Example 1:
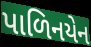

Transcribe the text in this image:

પાળિનયેન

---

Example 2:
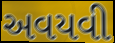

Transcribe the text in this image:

અવયવી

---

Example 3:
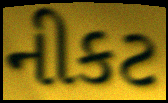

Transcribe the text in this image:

નીકટ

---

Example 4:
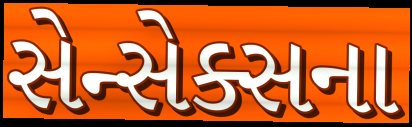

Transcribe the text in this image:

સેન્સેક્સના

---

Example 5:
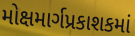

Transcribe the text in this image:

મોક્ષમાર્ગપ્રકાશકમાં